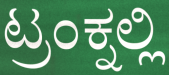
ಟ್ರಂಕ್ನಲ್ಲಿ